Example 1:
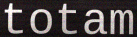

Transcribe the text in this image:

totam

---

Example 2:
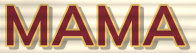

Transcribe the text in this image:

MAMA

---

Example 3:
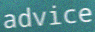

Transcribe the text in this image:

advice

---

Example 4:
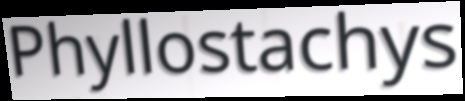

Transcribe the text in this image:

Phyllostachys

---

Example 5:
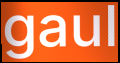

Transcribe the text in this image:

gaul